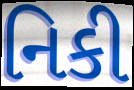
નિકી